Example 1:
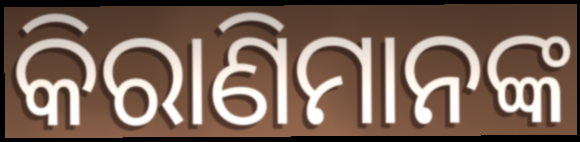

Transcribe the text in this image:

କିରାଣିମାନଙ୍କ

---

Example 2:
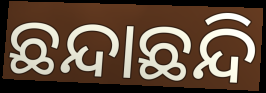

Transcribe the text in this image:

ଛନ୍ଦାଛନ୍ଦି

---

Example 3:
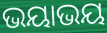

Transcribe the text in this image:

ଭୟାଭୟ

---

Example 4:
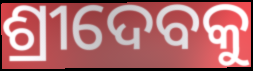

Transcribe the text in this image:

ଶ୍ରୀଦେବକୁ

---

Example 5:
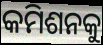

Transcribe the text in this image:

କମିଶନକୁ